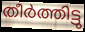
തീർത്തിട്ടു